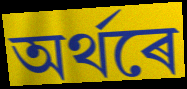
অৰ্থৰে